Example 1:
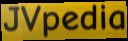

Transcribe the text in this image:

JVpedia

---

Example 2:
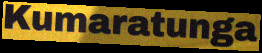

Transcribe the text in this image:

Kumaratunga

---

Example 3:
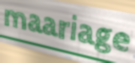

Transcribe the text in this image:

maariage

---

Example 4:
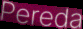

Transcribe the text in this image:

Pereda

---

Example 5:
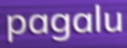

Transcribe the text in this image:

pagalu